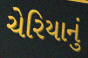
ચેરિયાનું